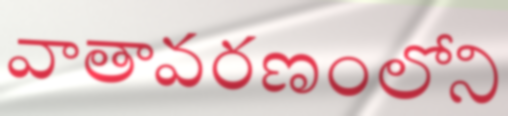
వాతావరణంలోని